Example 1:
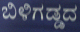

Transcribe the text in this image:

ಬಿಳಿಗಡ್ಡದ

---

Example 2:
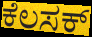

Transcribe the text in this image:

ಕೆಲಸಕ್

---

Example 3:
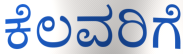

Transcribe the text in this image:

ಕೆಲವರಿಗೆ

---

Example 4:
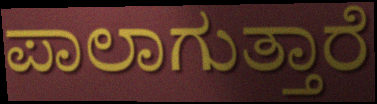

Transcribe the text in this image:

ಪಾಲಾಗುತ್ತಾರೆ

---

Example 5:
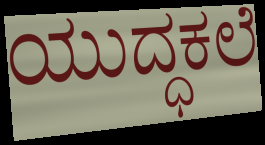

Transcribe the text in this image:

ಯುದ್ಧಕಲೆ